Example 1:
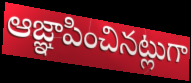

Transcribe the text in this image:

ఆజ్ఞాపించినట్లుగా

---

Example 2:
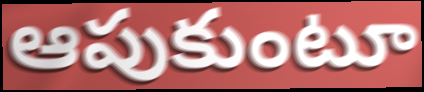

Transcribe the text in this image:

ఆపుకుంటూ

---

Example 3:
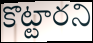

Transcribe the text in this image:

కొట్టారని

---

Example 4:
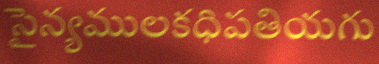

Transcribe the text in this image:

సైన్యములకధిపతియగు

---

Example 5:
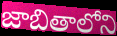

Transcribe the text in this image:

జాబితాలోని